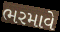
ભરમાવે